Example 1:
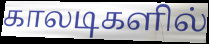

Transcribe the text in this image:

காலடிகளில்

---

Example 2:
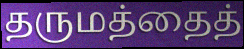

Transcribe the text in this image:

தருமத்தைத்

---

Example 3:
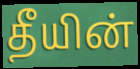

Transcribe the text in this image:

தீயின்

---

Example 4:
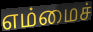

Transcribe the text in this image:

எம்மைச்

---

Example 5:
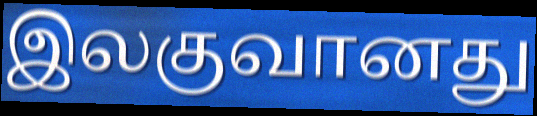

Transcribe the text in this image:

இலகுவானது